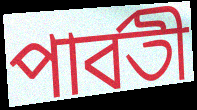
পার্বতী